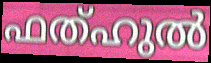
ഫത്ഹുൽ